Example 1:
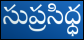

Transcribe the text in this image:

సుప్రసిధ్ధ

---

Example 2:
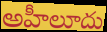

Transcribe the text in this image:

అహీలూదు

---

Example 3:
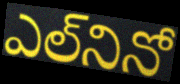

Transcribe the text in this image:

ఎల్‌నినో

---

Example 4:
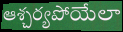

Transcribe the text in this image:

ఆశ్చర్యపోయేలా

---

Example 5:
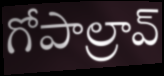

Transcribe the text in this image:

గోపాల్రావ్